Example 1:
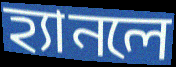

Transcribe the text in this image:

হ্যানলে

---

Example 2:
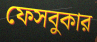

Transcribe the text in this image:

ফেসবুকার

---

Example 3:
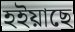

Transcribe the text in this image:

হইয়াছে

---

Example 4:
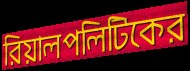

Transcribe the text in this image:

রিয়ালপলিটিকের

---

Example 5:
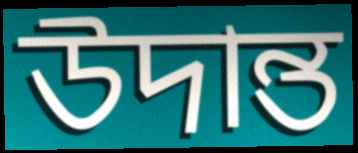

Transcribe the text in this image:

উদান্ত